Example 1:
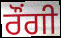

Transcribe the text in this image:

ਰੌਂਗੀ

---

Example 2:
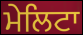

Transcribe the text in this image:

ਮੇਲਿਟਾ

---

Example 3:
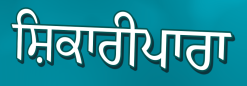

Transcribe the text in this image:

ਸ਼ਿਕਾਰੀਪਾਰਾ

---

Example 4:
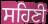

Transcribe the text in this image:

ਸਹਿਣੀ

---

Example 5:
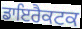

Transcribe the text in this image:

ਡਾਇਰੈਕਟਕ